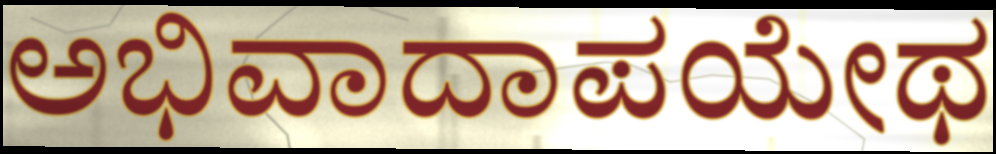
ಅಭಿವಾದಾಪಯೇಥ